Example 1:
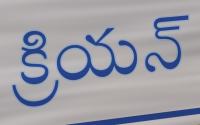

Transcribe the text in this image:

క్రియన్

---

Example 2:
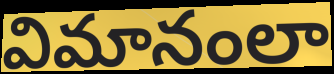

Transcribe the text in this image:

విమానంలా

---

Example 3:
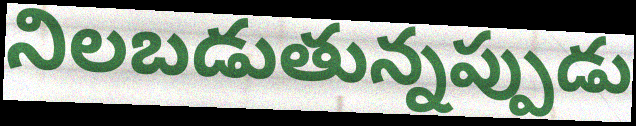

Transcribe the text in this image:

నిలబడుతున్నప్పుడు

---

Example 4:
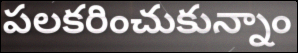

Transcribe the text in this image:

పలకరించుకున్నాం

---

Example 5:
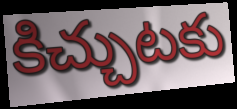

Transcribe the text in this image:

కిచ్చుటకు